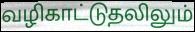
வழிகாட்டுதலிலும்